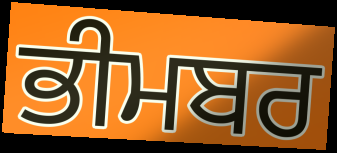
ਭੀਮਬਰ